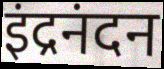
इंद्रनंदन